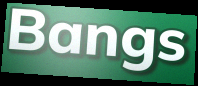
Bangs